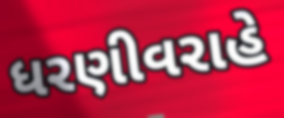
ધરણીવરાહે